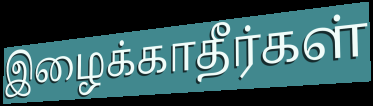
இழைக்காதீர்கள்